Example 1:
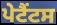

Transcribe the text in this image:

ਪੇਟੈਂਟਸ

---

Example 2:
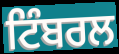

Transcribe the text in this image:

ਟਿੰਬਰਲ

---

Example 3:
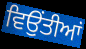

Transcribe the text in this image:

ਵਿਉਂਤੀਆਂ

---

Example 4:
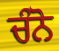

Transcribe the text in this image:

ਚੰਨੋ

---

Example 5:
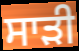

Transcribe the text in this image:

ਸਾੜੀ